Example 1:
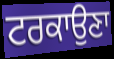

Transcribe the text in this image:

ਟਰਕਾਉਣਾ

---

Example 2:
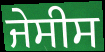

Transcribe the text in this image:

ਜੇਸੀਸ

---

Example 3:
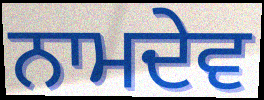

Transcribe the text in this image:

ਨਾਮਦੇਵ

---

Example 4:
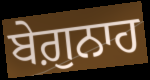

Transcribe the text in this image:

ਬੇਗ਼ੁਨਾਹ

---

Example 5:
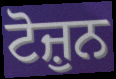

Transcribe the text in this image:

ਟੋਜ਼ੁਨ